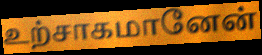
உற்சாகமானேன்